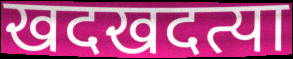
खदखदत्या